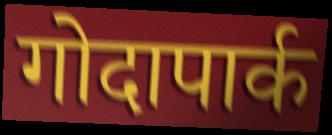
गोदापार्क